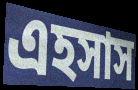
এহসাস